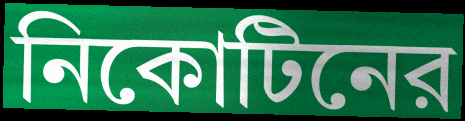
নিকোটিনের